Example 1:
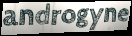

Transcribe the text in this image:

androgyne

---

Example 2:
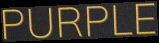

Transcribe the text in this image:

PURPLE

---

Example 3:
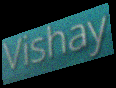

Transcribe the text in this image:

Vishay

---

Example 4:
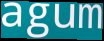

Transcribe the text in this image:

agum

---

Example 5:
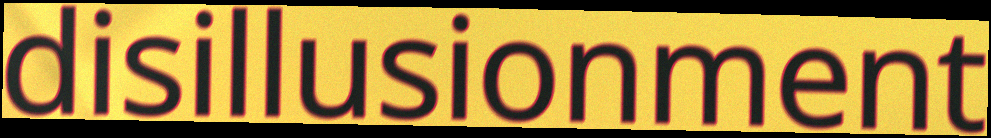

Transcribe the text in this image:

disillusionment